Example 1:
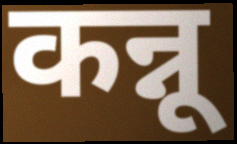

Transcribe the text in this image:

कन्नू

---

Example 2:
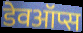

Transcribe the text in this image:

डेवऑप्स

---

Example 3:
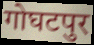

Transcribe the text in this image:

गोघटपुर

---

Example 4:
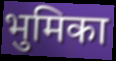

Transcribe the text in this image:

भुमिका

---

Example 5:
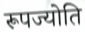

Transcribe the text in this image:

रूपज्योति